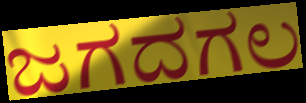
ಜಗದಗಲ